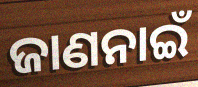
ଜାଣନାଇଁ